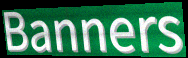
Banners